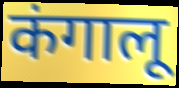
कंगालू